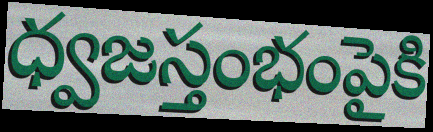
ధ్వజస్తంభంపైకి